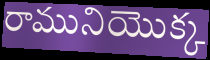
రామునియొక్క